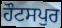
ਹੌਟਸਪੁਰ